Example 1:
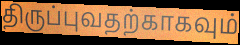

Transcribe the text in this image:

திருப்புவதற்காகவும்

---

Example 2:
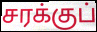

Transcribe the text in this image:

சரக்குப்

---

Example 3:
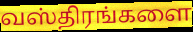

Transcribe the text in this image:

வஸ்திரங்களை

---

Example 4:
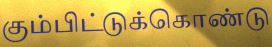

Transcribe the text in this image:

கும்பிட்டுக்கொண்டு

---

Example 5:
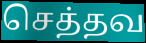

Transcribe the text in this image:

செத்தவ